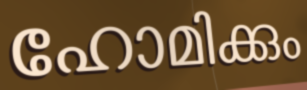
ഹോമിക്കും